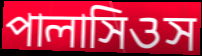
পালাসিওস